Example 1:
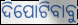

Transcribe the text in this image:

ଦିପୋଟିବାବୁ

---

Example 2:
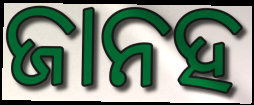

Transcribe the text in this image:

ଜାନହ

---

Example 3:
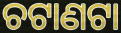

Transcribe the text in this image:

ଚଟାଣଟା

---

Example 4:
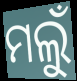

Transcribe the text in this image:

ମଲୁଁ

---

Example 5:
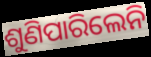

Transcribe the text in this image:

ଶୁଣିପାରିଲେନି